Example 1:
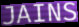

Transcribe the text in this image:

JAINS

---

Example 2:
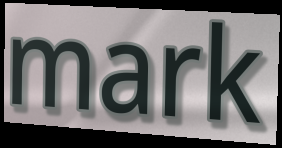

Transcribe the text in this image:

mark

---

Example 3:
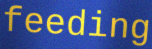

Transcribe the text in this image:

feeding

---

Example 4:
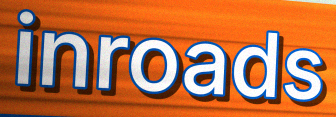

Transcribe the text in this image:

inroads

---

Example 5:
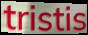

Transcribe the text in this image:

tristis